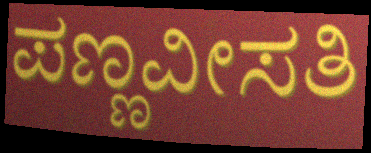
ಪಣ್ಣವೀಸತಿ